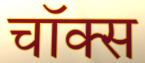
चॉक्स